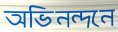
অভিনন্দনে